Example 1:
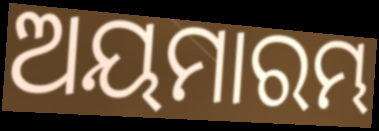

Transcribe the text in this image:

ଅୟମାରମ୍ଭ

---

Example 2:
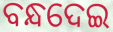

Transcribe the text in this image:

ବନ୍ଧଦେଇ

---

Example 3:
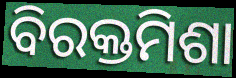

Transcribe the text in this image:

ବିରକ୍ତମିଶା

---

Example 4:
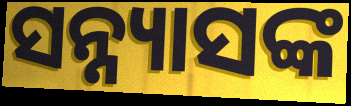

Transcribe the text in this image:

ସନ୍ନ୍ୟାସଙ୍କ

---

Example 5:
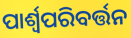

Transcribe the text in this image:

ପାର୍ଶ୍ଵପରିବର୍ତ୍ତନ